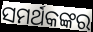
ସମର୍ଥକଙ୍କର